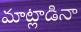
మాట్లాడినా